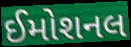
ઈમોશનલ